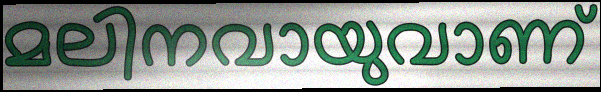
മലിനവായുവാണ്